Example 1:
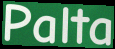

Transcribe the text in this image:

Palta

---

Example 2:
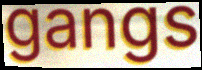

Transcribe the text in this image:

gangs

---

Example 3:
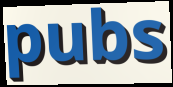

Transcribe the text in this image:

pubs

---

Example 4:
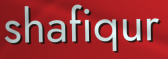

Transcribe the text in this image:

shafiqur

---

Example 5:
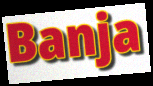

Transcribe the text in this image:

Banja